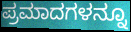
ಪ್ರಮಾದಗಳನ್ನೂ